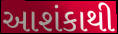
આશંકાથી